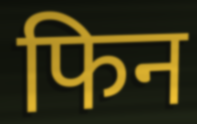
फिन